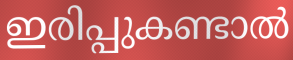
ഇരിപ്പുകണ്ടാൽ